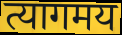
त्यागमय